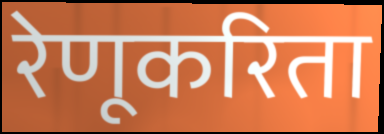
रेणूकरिता